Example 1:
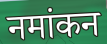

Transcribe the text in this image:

नमांकन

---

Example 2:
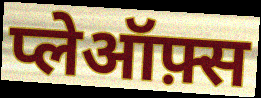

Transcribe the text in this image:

प्लेऑफ़्स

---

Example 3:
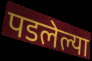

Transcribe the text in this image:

पडलेल्या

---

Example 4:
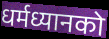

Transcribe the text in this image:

धर्मध्यानको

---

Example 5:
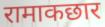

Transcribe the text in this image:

रामाकछार